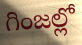
గింజల్లో